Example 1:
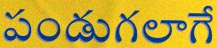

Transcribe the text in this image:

పండుగలాగే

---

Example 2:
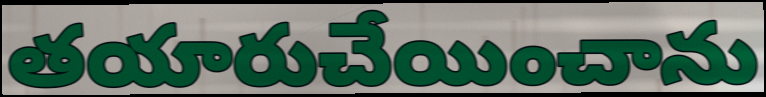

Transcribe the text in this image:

తయారుచేయించాను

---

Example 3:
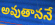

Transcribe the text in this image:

అవుతాననే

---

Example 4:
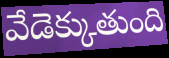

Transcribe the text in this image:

వేడెక్కుతుంది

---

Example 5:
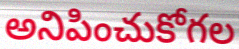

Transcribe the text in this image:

అనిపించుకోగల